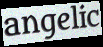
angelic